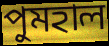
পুমহাল